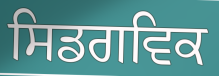
ਸਿਡਗਵਿਕ